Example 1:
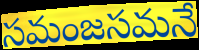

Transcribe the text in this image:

సమంజసమనే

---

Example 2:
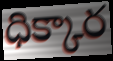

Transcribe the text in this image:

ధిక్కార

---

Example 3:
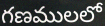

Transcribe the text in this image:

గణములలో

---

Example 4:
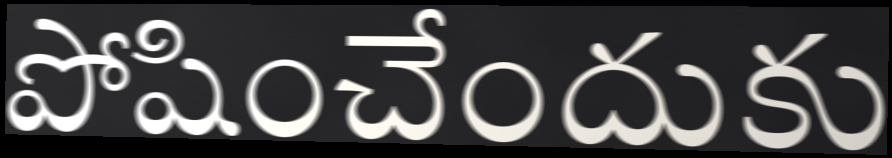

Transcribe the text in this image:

పోషించేందుకు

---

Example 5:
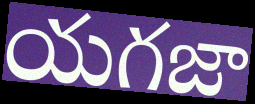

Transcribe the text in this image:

యగజా